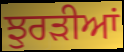
ਝੁਰੜੀਆਂ